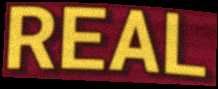
REAL